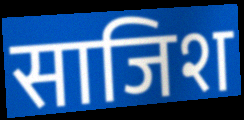
साजिश